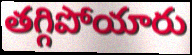
తగ్గిపోయారు